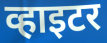
व्हाइटर